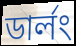
ডার্লং